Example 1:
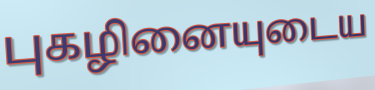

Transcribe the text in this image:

புகழினையுடைய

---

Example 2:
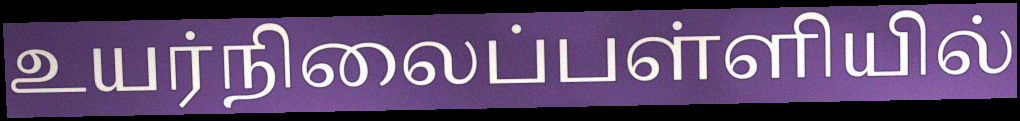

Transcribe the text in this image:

உயர்நிலைப்பள்ளியில்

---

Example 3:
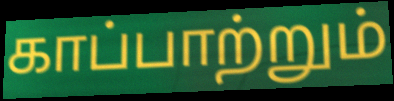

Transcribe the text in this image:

காப்பாற்றும்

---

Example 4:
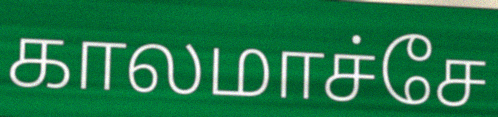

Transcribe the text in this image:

காலமாச்சே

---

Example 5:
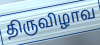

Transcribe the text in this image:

திருவிழாவ